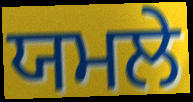
ਯਮਲੇ